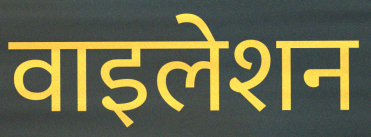
वाइलेशन